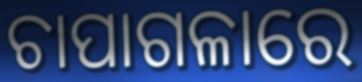
ଚାପାଗଳାରେ